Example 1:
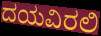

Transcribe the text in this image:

ದಯವಿರಲಿ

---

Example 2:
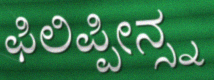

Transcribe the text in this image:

ಫಿಲಿಪ್ಪೀನ್ಸ್ನ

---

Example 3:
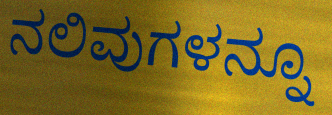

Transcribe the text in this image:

ನಲಿವುಗಳನ್ನೂ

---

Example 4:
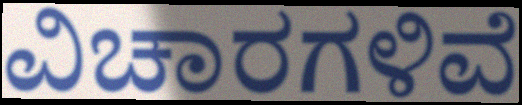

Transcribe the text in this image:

ವಿಚಾರಗಳಿವೆ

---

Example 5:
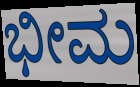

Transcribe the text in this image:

ಭೀಮ